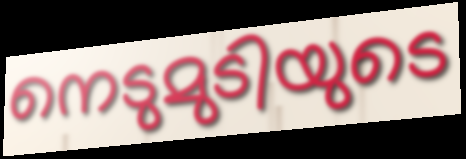
നെടുമുടിയുടെ